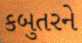
કબુતરને